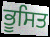
ਭੂਸਿਤ